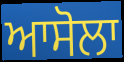
ਆਸੋਲਾ